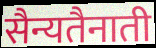
सैन्यतैनाती